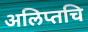
अलिप्तचि